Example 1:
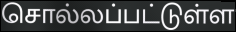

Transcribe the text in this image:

சொல்லப்பட்டுள்ள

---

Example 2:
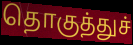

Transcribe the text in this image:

தொகுத்துச்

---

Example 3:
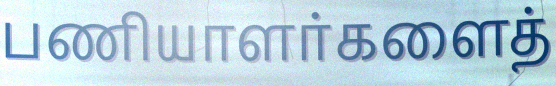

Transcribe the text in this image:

பணியாளர்களைத்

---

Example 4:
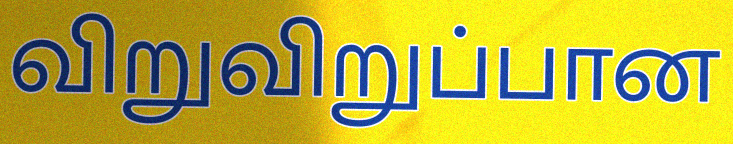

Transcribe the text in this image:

விறுவிறுப்பான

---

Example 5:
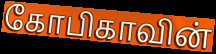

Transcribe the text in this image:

கோபிகாவின்